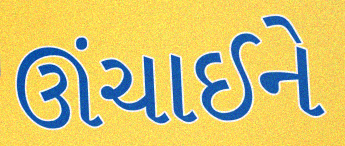
ઊંચાઈને